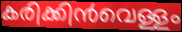
കരിക്കിൻവെള്ളം